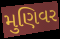
મુણિવર